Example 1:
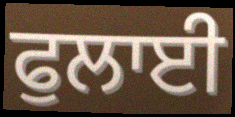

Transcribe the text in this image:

ਫੁਲਾਈ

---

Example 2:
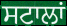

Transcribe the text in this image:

ਸਟਾਲਾਂ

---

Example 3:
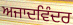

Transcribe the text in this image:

ਅਜਾਦਵਿੰਦਰ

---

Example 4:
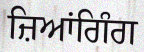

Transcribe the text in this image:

ਜ਼ਿਆਂਗਿੰਗ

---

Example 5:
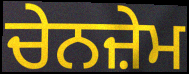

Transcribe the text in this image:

ਚੇਨਜ਼ੇਮ